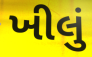
ખીલું